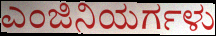
ಎಂಜಿನಿಯರ್ಗಳು